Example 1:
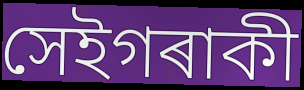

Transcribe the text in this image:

সেইগৰাকী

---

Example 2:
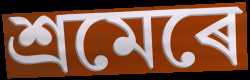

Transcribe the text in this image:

শ্ৰমেৰে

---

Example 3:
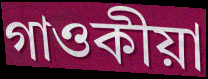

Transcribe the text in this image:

গাওকীয়া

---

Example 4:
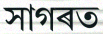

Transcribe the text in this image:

সাগৰত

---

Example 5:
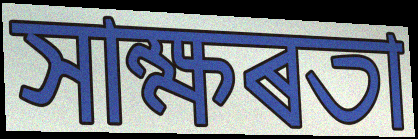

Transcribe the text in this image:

সাক্ষৰতা